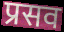
प्रसव